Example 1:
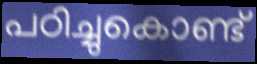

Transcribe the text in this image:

പഠിച്ചുകൊണ്ട്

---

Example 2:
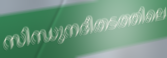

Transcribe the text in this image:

സിന്ധുനദീതടത്തിലെ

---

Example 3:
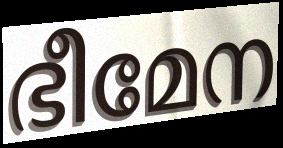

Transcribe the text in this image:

ഭീമേന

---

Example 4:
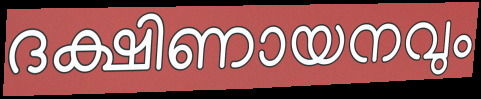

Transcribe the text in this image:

ദക്ഷിണായനവും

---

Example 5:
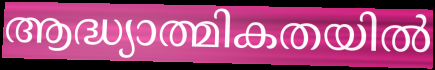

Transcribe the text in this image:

ആദ്ധ്യാത്മികതയിൽ